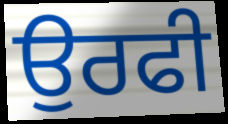
ਉਰਫੀ